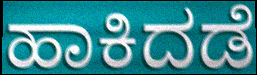
ಹಾಕಿದಡೆ